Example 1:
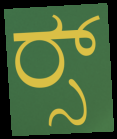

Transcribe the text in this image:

ರ್‍ಸ್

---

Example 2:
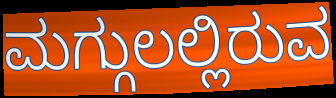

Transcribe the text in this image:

ಮಗ್ಗುಲಲ್ಲಿರುವ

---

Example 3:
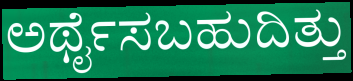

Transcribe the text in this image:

ಅರ್ಥೈಸಬಹುದಿತ್ತು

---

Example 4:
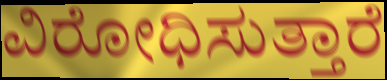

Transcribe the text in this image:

ವಿರೋಧಿಸುತ್ತಾರೆ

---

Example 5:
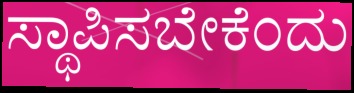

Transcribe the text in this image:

ಸ್ಥಾಪಿಸಬೇಕೆಂದು